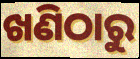
ଖଣିଠାରୁ